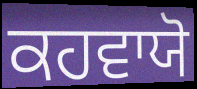
ਕਹਵਾਯੋ